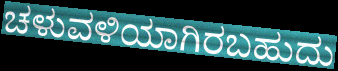
ಚಳುವಳಿಯಾಗಿರಬಹುದು